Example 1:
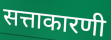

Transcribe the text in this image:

सत्ताकारणी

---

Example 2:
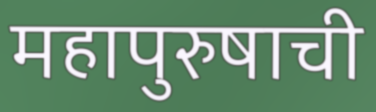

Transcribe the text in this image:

महापुरुषाची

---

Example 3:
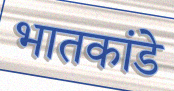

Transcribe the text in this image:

भातकांडे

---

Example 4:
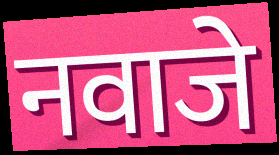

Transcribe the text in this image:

नवाजे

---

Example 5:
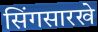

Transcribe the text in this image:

सिंगसारखे